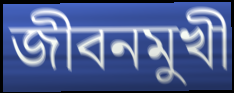
জীবনমুখী